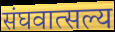
संघवात्सल्य